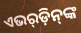
ଏଭର୍‍ଡ଼ିନ୍‌ଙ୍କ